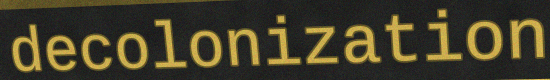
decolonization